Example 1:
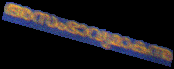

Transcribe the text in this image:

അസംഭാവ്യമാകുന്നു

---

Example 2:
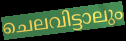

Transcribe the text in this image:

ചെലവിട്ടാലും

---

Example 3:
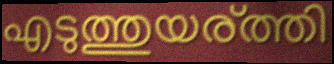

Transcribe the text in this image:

എടുത്തുയര്ത്തി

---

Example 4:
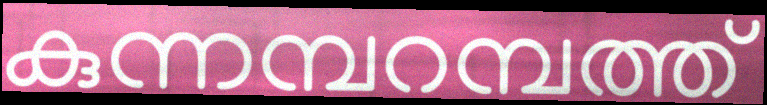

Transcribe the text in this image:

കുന്നമ്പറമ്പത്ത്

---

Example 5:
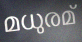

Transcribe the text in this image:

മധുരമ്